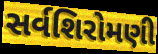
સર્વશિરોમણી